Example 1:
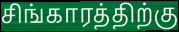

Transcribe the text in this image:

சிங்காரத்திற்கு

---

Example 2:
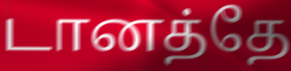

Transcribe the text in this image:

டானத்தே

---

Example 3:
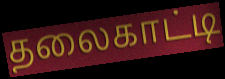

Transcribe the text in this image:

தலைகாட்டி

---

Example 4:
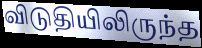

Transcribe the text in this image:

விடுதியிலிருந்த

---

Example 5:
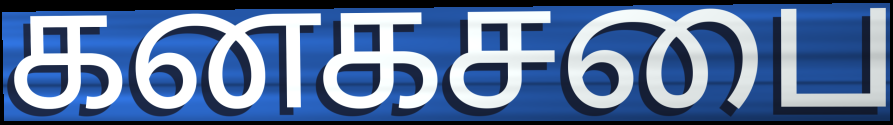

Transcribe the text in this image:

கனகசபை